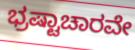
ಭ್ರಷ್ಟಾಚಾರವೇ